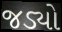
જડ્યો